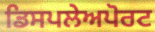
ਡਿਸਪਲੇਅਪੋਰਟ